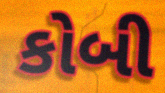
કોબી